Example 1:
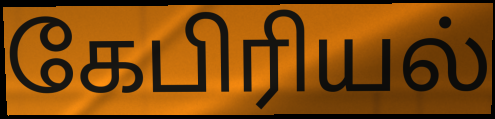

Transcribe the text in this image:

கேபிரியல்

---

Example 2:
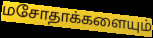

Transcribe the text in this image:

மசோதாக்களையும்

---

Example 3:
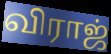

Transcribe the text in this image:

விராஜ்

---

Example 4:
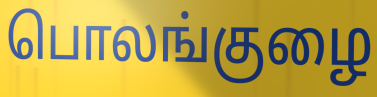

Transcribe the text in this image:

பொலங்குழை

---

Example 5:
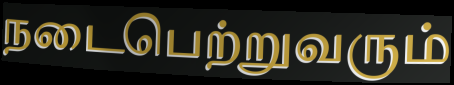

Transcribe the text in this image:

நடைபெற்றுவரும்